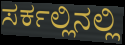
ಸರ್ಕಲ್ಲಿನಲ್ಲಿ